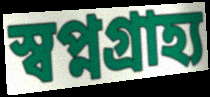
স্বপ্নগ্রাহ্য